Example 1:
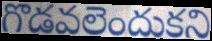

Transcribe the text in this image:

గొడవలెందుకని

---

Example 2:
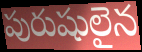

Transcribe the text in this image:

పురుషులైన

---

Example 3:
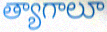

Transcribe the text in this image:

త్యాగాలూ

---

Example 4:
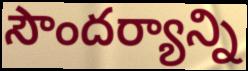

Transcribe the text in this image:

సౌందర్యాన్ని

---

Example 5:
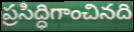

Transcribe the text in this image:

ప్రసిద్ధిగాంచినది